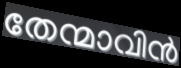
തേന്മാവിൻ